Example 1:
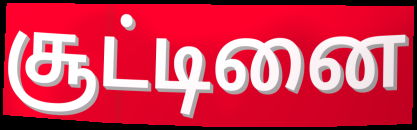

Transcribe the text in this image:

சூட்டினை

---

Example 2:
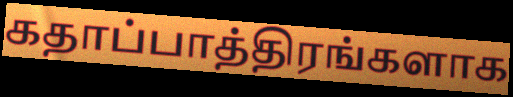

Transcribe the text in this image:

கதாப்பாத்திரங்களாக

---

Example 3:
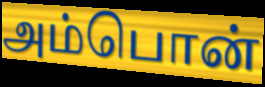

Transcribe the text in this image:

அம்பொன்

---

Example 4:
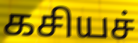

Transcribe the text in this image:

கசியச்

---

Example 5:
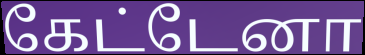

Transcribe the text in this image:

கேட்டேனா